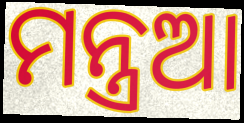
ମନ୍ତ୍ରଆ